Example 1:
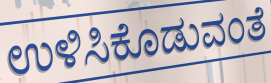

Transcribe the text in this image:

ಉಳಿಸಿಕೊಡುವಂತೆ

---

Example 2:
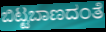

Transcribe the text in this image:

ಬಿಟ್ಟಬಾಣದಂತೆ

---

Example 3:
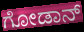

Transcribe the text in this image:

ಗೋಡಾನ್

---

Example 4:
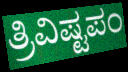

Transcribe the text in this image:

ತ್ರಿವಿಷ್ಟಪಂ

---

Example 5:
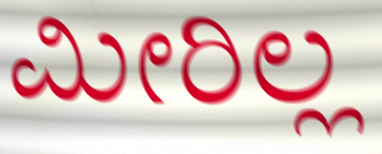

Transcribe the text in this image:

ಮೀರಿಲ್ಲ